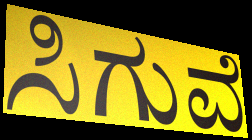
ಸಿಗುವೆ